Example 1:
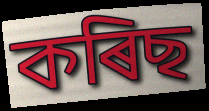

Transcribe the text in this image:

কৰিছ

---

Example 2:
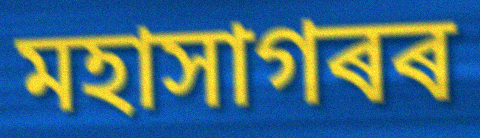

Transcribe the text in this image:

মহাসাগৰৰ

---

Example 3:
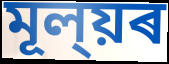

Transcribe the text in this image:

মূল্য়ৰ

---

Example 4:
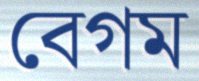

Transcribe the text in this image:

বেগম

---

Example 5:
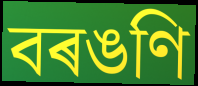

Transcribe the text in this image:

বৰঙণি